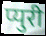
प्युरी